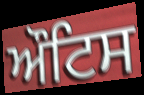
ਔਟਿਸ